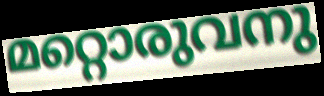
മറ്റൊരുവനു